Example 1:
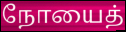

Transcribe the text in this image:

நோயைத்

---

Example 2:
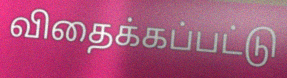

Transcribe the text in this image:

விதைக்கப்பட்டு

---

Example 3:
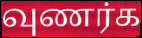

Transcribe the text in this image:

வுணர்க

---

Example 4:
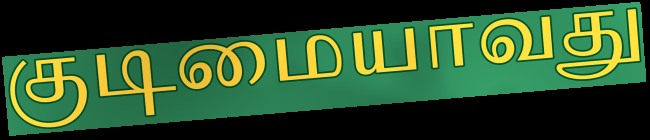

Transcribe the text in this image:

குடிமையாவது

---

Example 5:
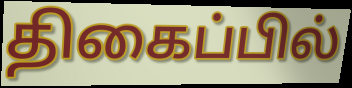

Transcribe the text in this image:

திகைப்பில்